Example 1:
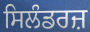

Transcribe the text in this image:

ਸਿਲੰਡਰਜ਼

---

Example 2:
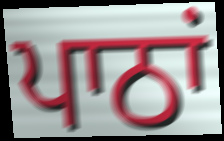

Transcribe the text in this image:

ਪਾਠਾਂ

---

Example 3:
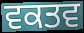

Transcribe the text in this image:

ਵਕਤਵ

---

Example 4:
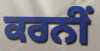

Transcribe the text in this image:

ਕਰਨੀਂ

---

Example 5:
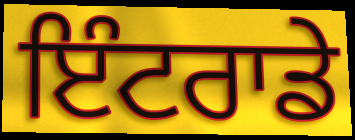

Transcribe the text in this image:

ਇੰਟਰਾਡੇ